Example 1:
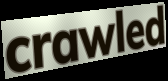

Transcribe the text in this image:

crawled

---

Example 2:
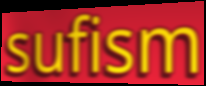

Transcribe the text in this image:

sufism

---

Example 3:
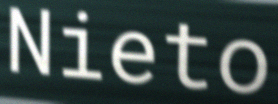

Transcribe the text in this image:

Nieto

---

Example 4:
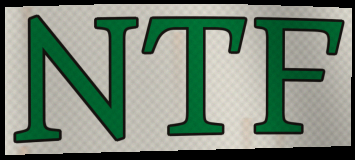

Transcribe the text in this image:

NTF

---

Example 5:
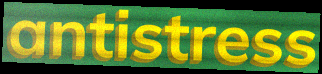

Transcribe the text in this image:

antistress